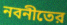
নবনীতের